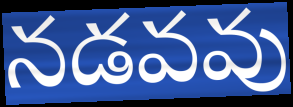
నడవవు